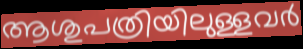
ആശുപത്രിയിലുള്ളവർ